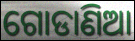
ଗୋଡାଣିଆ